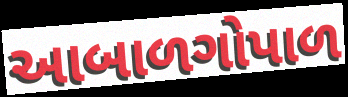
આબાળગોપાળ